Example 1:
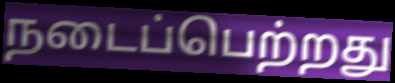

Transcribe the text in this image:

நடைப்பெற்றது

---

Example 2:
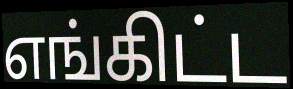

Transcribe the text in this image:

எங்கிட்ட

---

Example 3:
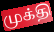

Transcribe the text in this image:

முக்தி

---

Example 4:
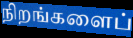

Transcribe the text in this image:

நிறங்களைப்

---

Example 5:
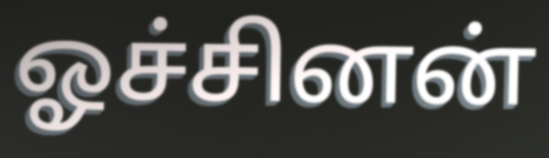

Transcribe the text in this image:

ஓச்சினன்